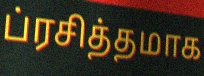
ப்ரசித்தமாக